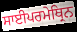
ਸਾਈਪਰਮੇਥ੍ਰਿਨ